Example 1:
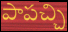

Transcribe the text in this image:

పాపచ్చి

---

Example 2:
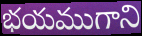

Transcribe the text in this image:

భయముగాని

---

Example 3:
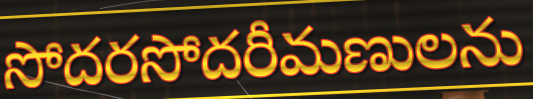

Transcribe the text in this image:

సోదరసోదరీమణులను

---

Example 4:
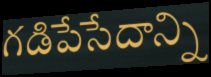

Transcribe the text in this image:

గడిపేసేదాన్ని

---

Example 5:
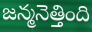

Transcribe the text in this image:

జన్మనెత్తింది